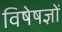
विषेषज्ञों